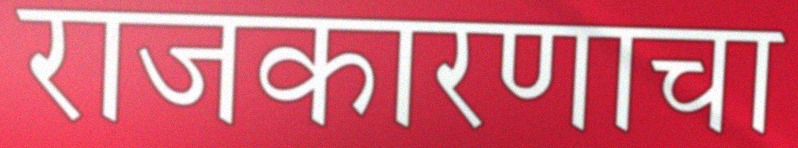
राजकारणाचा